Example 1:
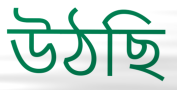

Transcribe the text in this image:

উঠছি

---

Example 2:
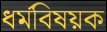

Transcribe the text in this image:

ধর্মবিষয়ক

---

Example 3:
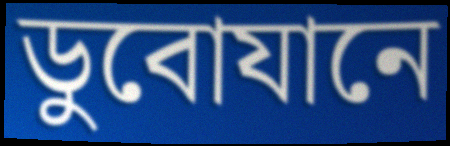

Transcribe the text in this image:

ডুবোযানে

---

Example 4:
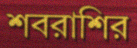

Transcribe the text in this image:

শবরাশির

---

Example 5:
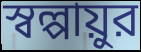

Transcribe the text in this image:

স্বল্পায়ুর